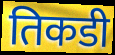
तिकडी